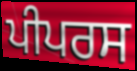
ਪੀਪਰਸ